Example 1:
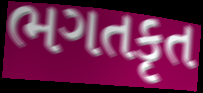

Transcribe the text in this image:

ભગતકૃત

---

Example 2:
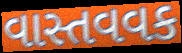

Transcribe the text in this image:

વાસ્તવવક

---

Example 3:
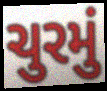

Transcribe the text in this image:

ચુરમું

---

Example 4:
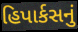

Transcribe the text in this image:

હિપાર્કસનું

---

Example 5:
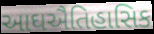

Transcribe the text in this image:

આઘઐતિહાસિક